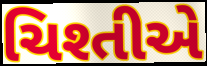
ચિશ્તીએ